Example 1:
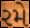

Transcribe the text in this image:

રમે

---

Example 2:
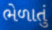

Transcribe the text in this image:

ભેળાતું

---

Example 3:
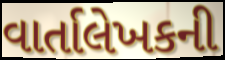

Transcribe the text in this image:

વાર્તાલેખકની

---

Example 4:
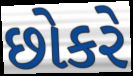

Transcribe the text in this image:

છોકરે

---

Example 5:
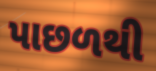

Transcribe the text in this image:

પાછળથી